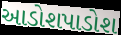
આડોશપાડોશ